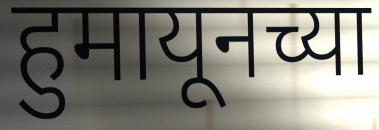
हुमायूनच्या